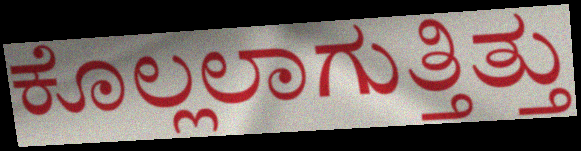
ಕೊಲ್ಲಲಾಗುತ್ತಿತ್ತು